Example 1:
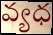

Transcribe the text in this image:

వ్యధ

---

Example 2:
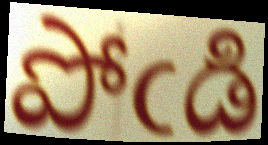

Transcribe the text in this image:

పోఁడి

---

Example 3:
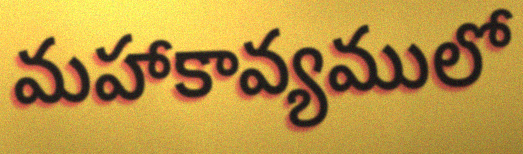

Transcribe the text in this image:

మహాకావ్యములో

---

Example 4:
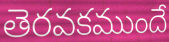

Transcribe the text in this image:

తెరవకముందే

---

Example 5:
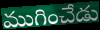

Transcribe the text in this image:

ముగించేడు